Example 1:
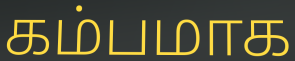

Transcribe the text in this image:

கம்பமாக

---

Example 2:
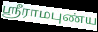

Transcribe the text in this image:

ஸ்ரீராமபுண்ய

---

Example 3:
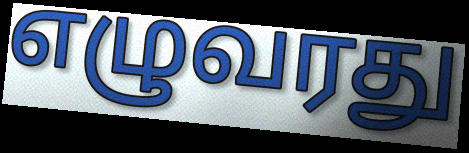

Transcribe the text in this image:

எழுவரது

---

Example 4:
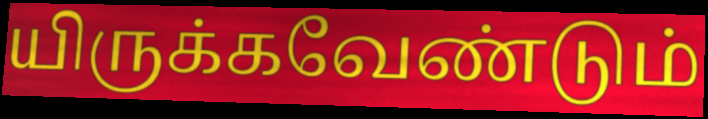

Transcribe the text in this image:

யிருக்கவேண்டும்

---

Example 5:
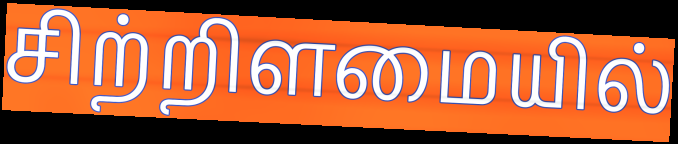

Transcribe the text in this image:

சிற்றிளமையில்